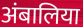
अंबालिया